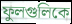
ফুলগুলিকে